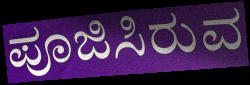
ಪೂಜಿಸಿರುವ